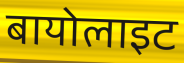
बायोलाइट